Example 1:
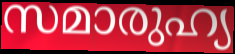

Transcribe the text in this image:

സമാരുഹ്യ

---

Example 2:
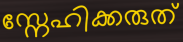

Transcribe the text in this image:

സ്നേഹിക്കരുത്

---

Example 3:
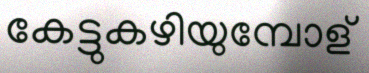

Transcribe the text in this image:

കേട്ടുകഴിയുമ്പോള്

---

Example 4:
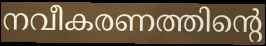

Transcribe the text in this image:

നവീകരണത്തിന്റെ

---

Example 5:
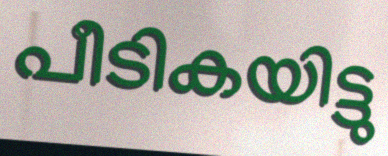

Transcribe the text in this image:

പീടികയിട്ടു